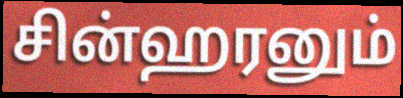
சின்ஹரனும்